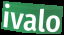
ivalo